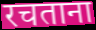
रचताना